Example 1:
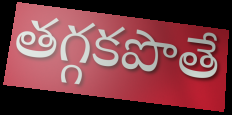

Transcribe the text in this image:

తగ్గకపొతే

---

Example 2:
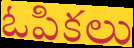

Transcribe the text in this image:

ఓపికలు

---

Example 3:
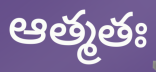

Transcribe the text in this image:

ఆత్మతః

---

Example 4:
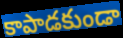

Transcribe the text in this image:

కాపాడకుండా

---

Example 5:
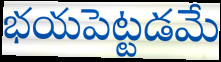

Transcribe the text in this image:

భయపెట్టడమే